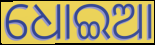
ଧୋଇଆ